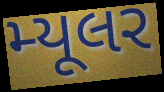
મ્યૂલર